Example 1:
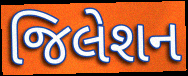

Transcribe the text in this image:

જિલેશન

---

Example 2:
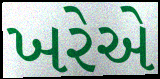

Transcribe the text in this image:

ખરેએ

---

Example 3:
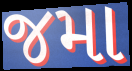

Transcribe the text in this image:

જમા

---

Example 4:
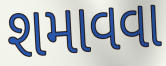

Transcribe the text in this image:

શમાવવા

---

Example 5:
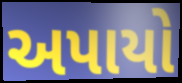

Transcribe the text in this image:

અપાયો